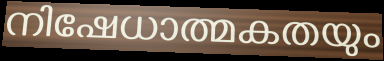
നിഷേധാത്മകതയും